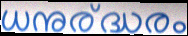
ധനുര്ദ്ധരം